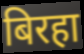
बिरहा